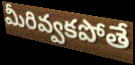
మీరివ్వకపోతే